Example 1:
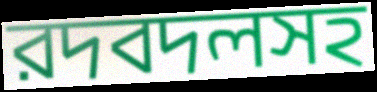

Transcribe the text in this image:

রদবদলসহ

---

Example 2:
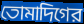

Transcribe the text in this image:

তোমাদিগের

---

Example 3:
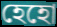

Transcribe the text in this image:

হেহো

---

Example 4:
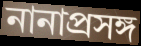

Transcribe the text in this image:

নানাপ্রসঙ্গ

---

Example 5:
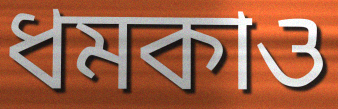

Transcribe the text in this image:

ধমকাও